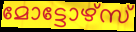
മോട്ടോഴ്സ്